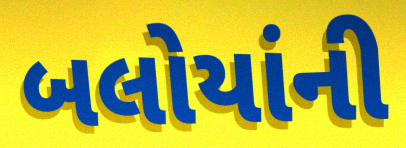
બલોયાંની